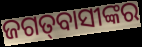
ଜଗତ୍‍ବାସୀଙ୍କର